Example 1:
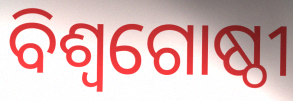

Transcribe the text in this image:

ବିଶ୍ୱଗୋଷ୍ଠୀ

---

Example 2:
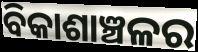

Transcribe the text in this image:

ବିକାଶାଞ୍ଚଳର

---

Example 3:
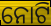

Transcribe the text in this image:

ନୋଟି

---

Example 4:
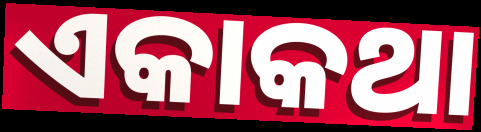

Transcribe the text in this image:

ଏକାକଥା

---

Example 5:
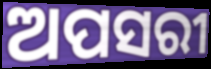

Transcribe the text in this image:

ଅପସରୀ